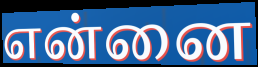
என்னை